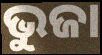
ଭୁଜା